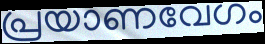
പ്രയാണവേഗം